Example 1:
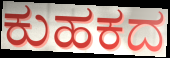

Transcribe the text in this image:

ಕುಹಕದ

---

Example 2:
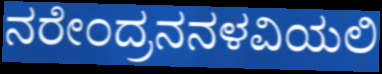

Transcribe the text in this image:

ನರೇಂದ್ರನನಳವಿಯಲಿ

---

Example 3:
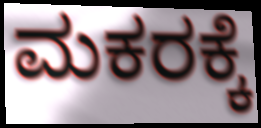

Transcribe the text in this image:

ಮಕರಕ್ಕೆ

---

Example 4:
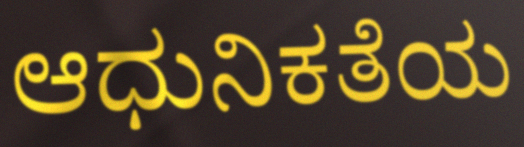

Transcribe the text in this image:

ಆಧುನಿಕತೆಯ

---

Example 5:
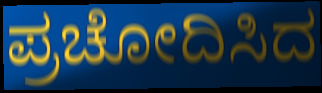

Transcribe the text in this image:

ಪ್ರಚೋದಿಸಿದ